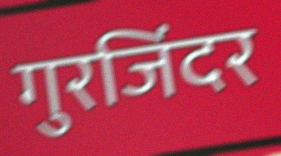
गुरजिंदर